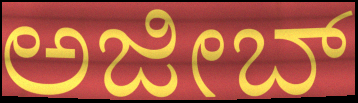
ಅಜೀಬ್